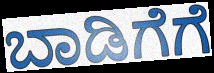
ಬಾಡಿಗೆಗೆ